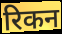
रिकन